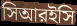
সিআরইসি